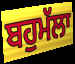
ਬਹੁਮੱਲਾ